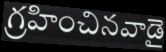
గ్రహించినవాడై